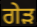
ਗੇੜ